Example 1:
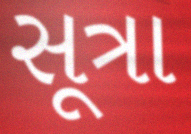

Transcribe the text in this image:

સૂત્રા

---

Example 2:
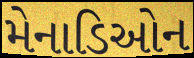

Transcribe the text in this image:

મેનાડિઓન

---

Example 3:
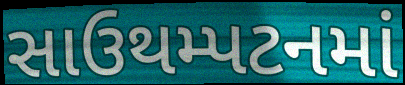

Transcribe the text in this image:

સાઉથમ્પટનમાં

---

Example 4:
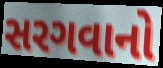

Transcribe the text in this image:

સરગવાનો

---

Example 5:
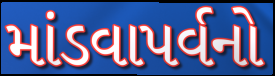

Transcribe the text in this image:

માંડવાપર્વનો